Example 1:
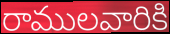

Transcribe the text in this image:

రాములవారికి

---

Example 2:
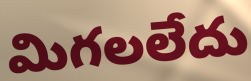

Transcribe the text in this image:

మిగలలేదు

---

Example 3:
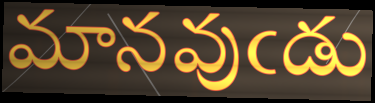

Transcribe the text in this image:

మానవుఁడు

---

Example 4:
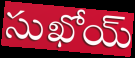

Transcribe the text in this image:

సుఖోయ్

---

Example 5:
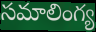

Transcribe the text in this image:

సమాలింగ్య